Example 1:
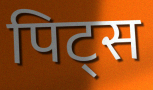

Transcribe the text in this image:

पिट्स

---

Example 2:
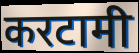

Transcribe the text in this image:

करटामी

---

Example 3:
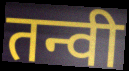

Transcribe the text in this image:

तन्वी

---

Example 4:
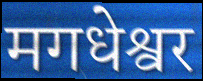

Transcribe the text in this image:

मगधेश्वर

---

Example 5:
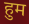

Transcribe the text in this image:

हुम